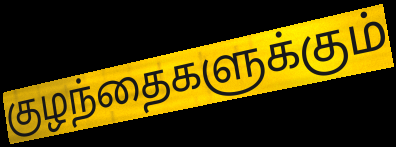
குழந்தைகளுக்கும்